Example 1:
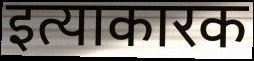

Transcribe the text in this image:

इत्याकारक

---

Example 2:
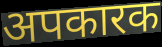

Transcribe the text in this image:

अपकारक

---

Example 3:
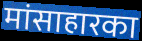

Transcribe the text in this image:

मांसाहारका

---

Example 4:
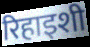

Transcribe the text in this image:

रिहाइशी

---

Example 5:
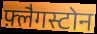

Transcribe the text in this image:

फ़्लैगस्टोन